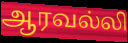
ஆரவல்லி